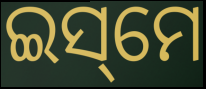
ଇସ୍‌ମେ